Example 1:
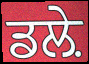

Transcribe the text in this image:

ਡਲ਼ੇ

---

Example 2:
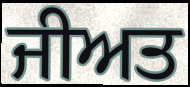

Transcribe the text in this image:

ਜੀਅਤ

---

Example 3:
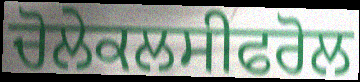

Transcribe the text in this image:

ਚੋਲੇਕਲਸੀਫਰੋਲ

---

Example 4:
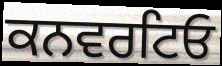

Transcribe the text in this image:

ਕਨਵਰਟਿਓ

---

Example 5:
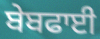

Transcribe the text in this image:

ਬੇਬਫਾਈ